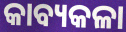
କାବ୍ୟକଳା